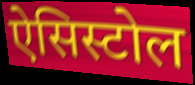
ऐसिस्टोल